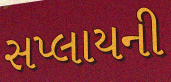
સપ્લાયની